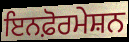
ਇਨਫ਼ੋਰਮੇਸ਼ਨ